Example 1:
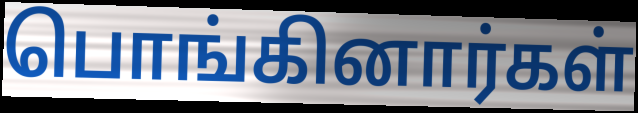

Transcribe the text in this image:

பொங்கினார்கள்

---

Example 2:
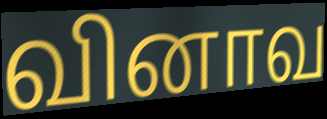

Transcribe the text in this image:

வினாவ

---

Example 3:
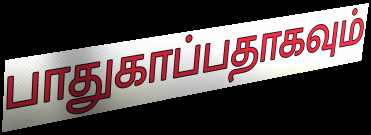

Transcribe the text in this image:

பாதுகாப்பதாகவும்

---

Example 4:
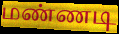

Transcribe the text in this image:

மண்ணடி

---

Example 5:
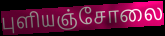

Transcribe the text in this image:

புளியஞ்சோலை